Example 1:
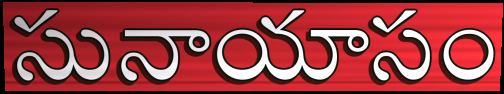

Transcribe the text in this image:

సునాయాసం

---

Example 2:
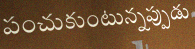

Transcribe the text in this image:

పంచుకుంటున్నప్పుడు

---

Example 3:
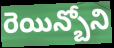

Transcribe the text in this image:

రెయిన్బోని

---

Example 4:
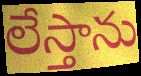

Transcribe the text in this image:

లేస్తాను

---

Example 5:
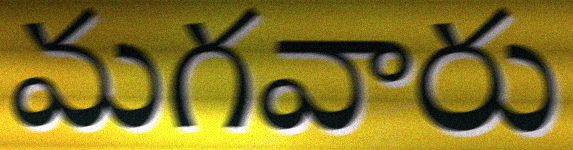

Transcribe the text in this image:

మగవారు